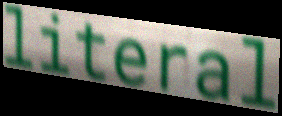
literal